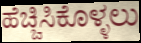
ಹೆಚ್ಚಿಸಿಕೊಳ್ಳಲು